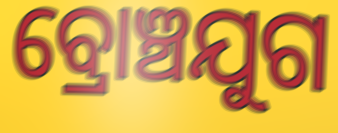
ବ୍ରୋଞ୍ଚଯୁଗ